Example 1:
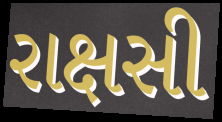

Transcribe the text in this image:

રાક્ષસી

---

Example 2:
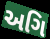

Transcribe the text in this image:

અગિ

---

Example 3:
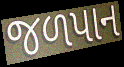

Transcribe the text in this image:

જળપાન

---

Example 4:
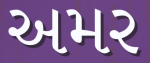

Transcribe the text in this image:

અમર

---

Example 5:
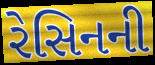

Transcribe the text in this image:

રેસિનની